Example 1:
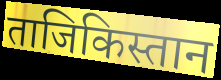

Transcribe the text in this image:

ताजिकिस्तान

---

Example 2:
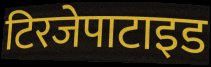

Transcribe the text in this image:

टिरजेपाटाइड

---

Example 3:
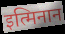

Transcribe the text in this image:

इत्मिनान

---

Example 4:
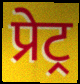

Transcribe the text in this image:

प्रेट्र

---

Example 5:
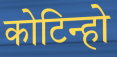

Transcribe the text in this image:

कोटिन्हो